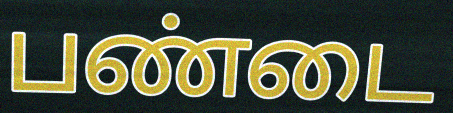
பண்டை